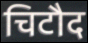
चिटौद